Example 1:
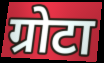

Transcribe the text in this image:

ग्रोटा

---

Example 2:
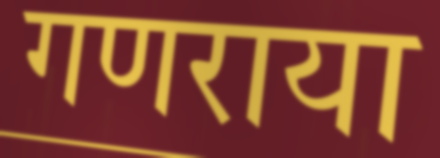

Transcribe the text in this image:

गणराया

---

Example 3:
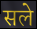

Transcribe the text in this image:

सले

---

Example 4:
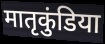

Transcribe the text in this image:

मातृकुंडिया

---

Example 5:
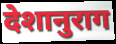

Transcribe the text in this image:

देशानुराग